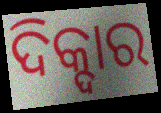
ଦିକ୍ଦାର